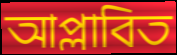
আপ্লাবিত